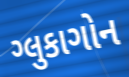
ગ્લુકાગોન